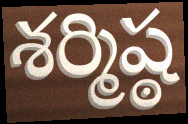
శర్మిష్ఠ